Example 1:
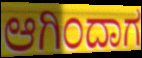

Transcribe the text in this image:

ಆಗಿಂದಾಗ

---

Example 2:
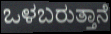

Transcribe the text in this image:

ಒಳಬರುತ್ತಾನೆ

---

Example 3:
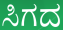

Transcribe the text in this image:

ಸಿಗದ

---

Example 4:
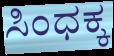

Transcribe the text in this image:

ಸಿಂಧಕ್ಕ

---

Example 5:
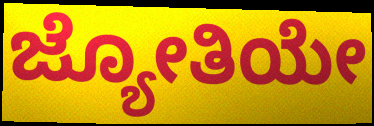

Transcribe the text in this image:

ಜ್ಯೋತಿಯೇ